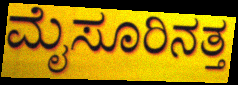
ಮೈಸೂರಿನತ್ತ